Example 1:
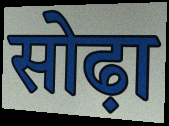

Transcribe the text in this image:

सोढ़ा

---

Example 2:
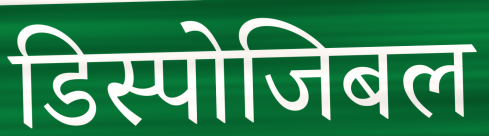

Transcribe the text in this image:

डिस्पोजिबल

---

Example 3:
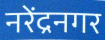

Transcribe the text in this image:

नरेंद्रनगर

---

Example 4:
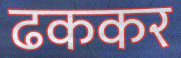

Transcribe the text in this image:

ढककर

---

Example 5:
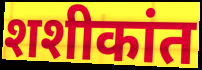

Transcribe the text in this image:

शशीकांत